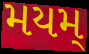
મયમ્